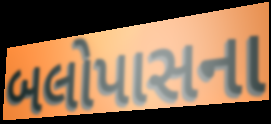
બલોપાસના